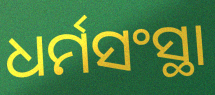
ଧର୍ମସଂସ୍ଥା